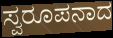
ಸ್ವರೂಪನಾದ